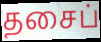
தசைப்